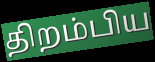
திறம்பிய